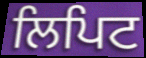
ਲਿਪਿਟ